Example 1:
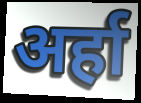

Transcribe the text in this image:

अर्हा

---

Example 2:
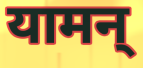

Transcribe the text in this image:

यामन्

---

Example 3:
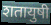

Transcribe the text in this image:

शतायुषी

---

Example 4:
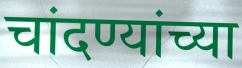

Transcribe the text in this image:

चांदण्यांच्या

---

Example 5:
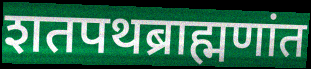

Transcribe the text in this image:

शतपथब्राह्मणांत